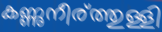
കണ്ണുനീര്ത്തുള്ളി